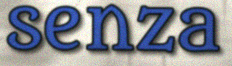
senza